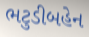
ભટુડીબહેન